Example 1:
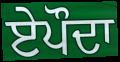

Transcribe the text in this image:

ਏਪੌਦਾ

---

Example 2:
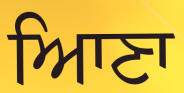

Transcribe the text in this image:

ਆਿਣਾ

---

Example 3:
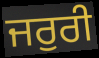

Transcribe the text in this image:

ਜਰੁਰੀ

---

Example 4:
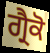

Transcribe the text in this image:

ਗ੍ਰੈਕੋ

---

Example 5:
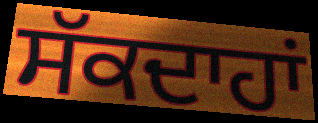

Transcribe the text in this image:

ਸੱਕਦਾਹਾਂ